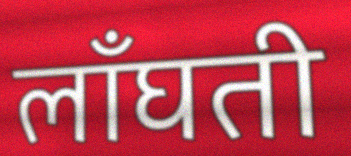
लाँघती